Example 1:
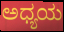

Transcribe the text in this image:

ಅಧ್ಯಯ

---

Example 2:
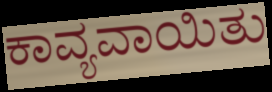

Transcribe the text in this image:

ಕಾವ್ಯವಾಯಿತು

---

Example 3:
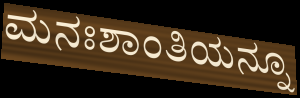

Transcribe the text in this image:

ಮನಃಶಾಂತಿಯನ್ನೂ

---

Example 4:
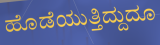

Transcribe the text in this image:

ಹೊಡೆಯುತ್ತಿದ್ದುದೂ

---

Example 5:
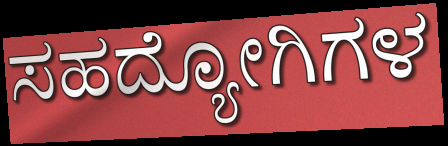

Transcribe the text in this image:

ಸಹದ್ಯೋಗಿಗಳ